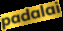
padalai